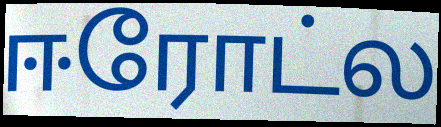
ஈரோட்ல